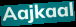
Aajkaal